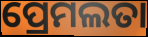
ପ୍ରେମଲତା